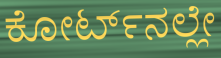
ಕೋರ್ಟ್‌ನಲ್ಲೇ